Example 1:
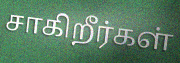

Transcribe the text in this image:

சாகிறீர்கள்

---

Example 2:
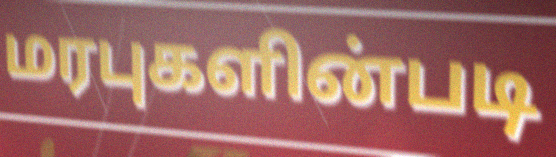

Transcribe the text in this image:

மரபுகளின்படி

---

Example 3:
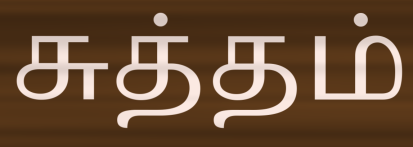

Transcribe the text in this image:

சுத்தம்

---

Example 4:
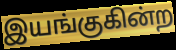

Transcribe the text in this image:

இயங்குகின்ற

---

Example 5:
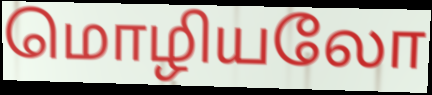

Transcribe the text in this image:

மொழியலோ